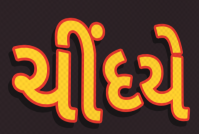
ચીંધ્યે